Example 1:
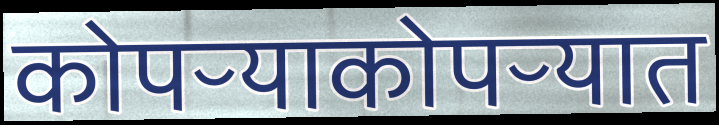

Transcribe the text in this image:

कोपऱ्याकोपऱ्यात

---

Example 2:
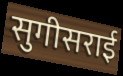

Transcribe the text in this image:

सुगीसराई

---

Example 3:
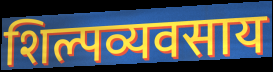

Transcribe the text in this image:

शिल्पव्यवसाय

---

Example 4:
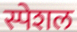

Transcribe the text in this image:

स्पेशल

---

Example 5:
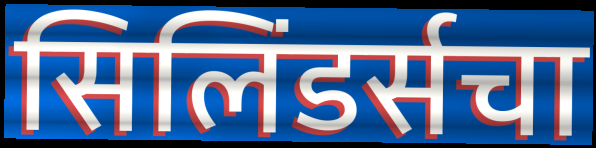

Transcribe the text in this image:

सिलिंडर्सचा